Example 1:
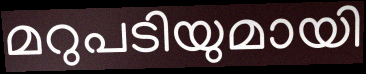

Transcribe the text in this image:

മറുപടിയുമായി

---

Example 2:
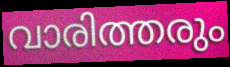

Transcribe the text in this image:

വാരിത്തരും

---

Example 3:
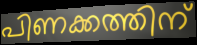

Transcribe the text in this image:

പിണക്കത്തിന്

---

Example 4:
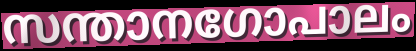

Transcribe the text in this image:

സന്താനഗോപാലം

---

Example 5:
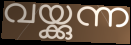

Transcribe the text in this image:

വയ്ക്കുന്ന